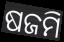
ଷଜମି